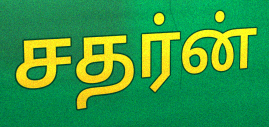
சதர்ன்